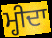
ਮ੍ਹੀਦਾ